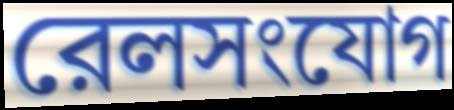
রেলসংযোগ